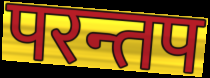
परन्तप